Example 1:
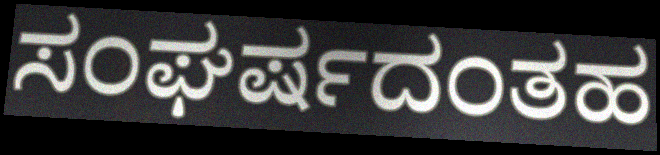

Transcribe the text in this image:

ಸಂಘರ್ಷದಂತಹ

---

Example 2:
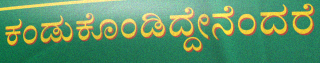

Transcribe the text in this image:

ಕಂಡುಕೊಂಡಿದ್ದೇನೆಂದರೆ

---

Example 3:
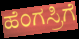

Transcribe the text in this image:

ಹೆಂಗಸ್ರಿಗೆ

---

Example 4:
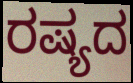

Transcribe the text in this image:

ರಷ್ಯದ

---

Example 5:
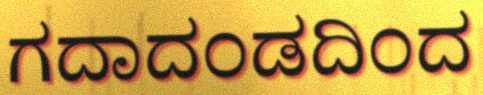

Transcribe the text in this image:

ಗದಾದಂಡದಿಂದ